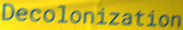
Decolonization